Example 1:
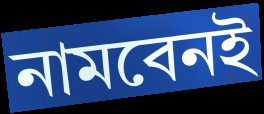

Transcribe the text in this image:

নামবেনই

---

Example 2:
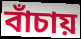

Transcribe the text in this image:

বাঁচায়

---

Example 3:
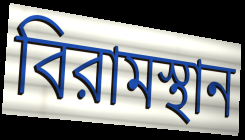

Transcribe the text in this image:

বিরামস্থান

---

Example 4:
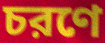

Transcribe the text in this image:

চরণে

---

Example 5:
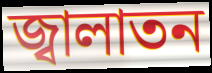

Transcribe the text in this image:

জ্বালাতন